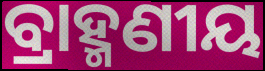
ବ୍ରାହ୍ମଣୀୟ